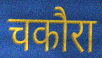
चकौरा